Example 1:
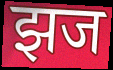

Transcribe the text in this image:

झज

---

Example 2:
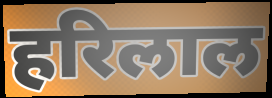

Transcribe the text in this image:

हरिलाल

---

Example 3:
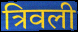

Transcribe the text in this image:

त्रिवली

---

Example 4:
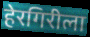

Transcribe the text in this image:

हेरगिरीला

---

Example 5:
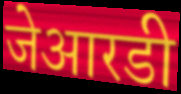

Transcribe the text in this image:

जेआरडी